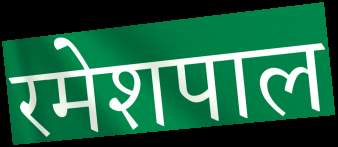
रमेशपाल